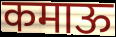
कमाऊ